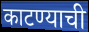
काटण्याची